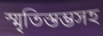
স্মৃতিস্তম্ভসহ